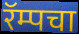
रॅम्पचा